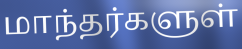
மாந்தர்களுள்